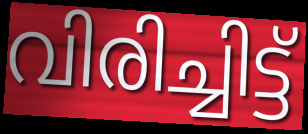
വിരിച്ചിട്ട്